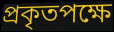
প্ৰকৃতপক্ষে